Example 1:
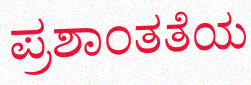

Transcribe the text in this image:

ಪ್ರಶಾಂತತೆಯ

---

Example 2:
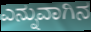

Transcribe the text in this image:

ಎನ್ನುವಾಗಿನ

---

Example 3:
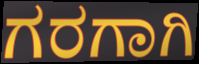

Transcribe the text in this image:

ಗರಗಾಗಿ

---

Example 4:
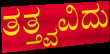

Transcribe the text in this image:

ತತ್ತ್ವವಿದು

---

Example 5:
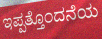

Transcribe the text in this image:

ಇಪ್ಪತ್ತೊಂದನೆಯ